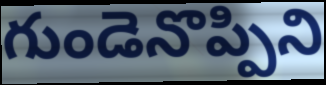
గుండెనొప్పిని